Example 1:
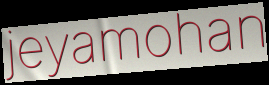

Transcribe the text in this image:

jeyamohan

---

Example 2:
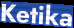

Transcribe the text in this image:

Ketika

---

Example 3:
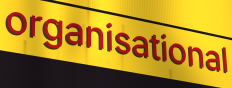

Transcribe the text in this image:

organisational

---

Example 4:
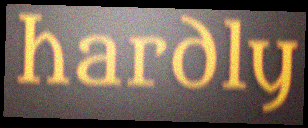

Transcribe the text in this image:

hardly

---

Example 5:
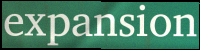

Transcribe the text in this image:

expansion